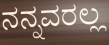
ನನ್ನವರಲ್ಲ